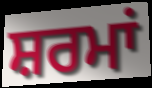
ਸ਼ਰਮਾਂ